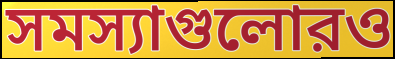
সমস্যাগুলোরও